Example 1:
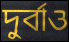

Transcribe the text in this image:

দুর্বাও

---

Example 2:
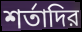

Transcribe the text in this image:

শর্তাদির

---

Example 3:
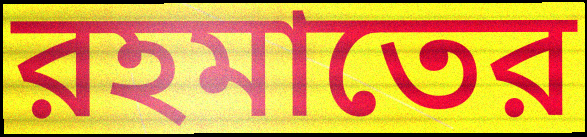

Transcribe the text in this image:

রহমাতের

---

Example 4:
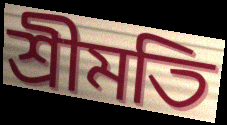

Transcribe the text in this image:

শ্রীমতি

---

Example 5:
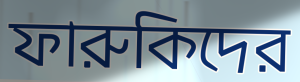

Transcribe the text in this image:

ফারুকিদের